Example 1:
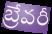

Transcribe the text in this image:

బ్రేవరీ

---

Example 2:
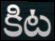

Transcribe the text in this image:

కిట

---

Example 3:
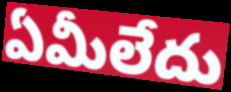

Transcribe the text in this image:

ఏమీలేదు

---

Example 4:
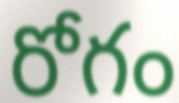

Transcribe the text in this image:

రోగం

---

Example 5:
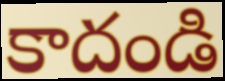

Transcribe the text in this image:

కాదండి